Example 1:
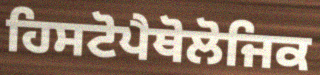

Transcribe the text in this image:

ਹਿਸਟੋਪੈਥੋਲੋਜਿਕ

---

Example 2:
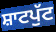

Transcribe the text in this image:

ਸ਼ਾਟਪੁੱਟ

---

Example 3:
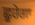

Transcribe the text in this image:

ਛੂਹੇਗਾ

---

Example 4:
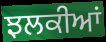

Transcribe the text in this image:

ਝਲਕੀਆਂ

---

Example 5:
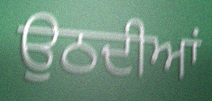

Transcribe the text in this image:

ਉਠਦੀਆਂ